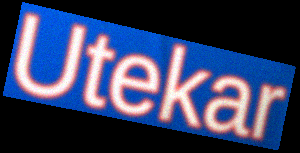
Utekar